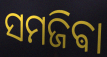
ସମଜିଵା